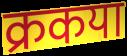
क्रकया